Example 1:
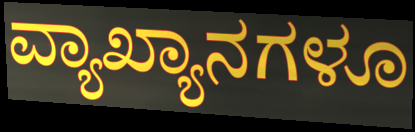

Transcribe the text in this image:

ವ್ಯಾಖ್ಯಾನಗಳೂ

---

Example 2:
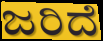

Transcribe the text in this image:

ಜರಿದೆ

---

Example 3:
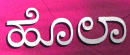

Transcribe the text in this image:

ಹೊಲಾ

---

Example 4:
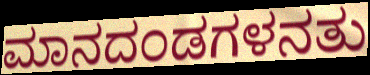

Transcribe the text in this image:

ಮಾನದಂಡಗಳನತು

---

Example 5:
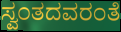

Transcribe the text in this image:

ಸ್ವಂತದವರಂತೆ